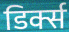
डिर्क्स